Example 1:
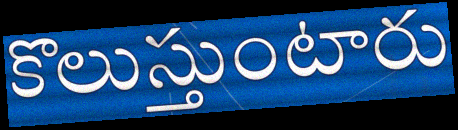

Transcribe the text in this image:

కొలుస్తుంటారు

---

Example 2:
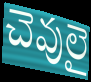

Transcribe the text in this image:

చెవులై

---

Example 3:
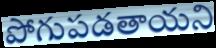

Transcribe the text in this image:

పోగుపడతాయని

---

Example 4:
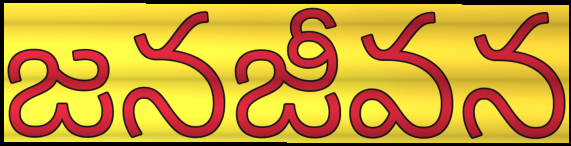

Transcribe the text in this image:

జనజీవన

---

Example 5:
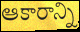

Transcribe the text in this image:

ఆకారాన్ని